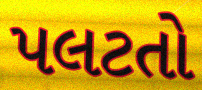
પલટતો